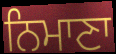
ਨਿਮਾਣਾ